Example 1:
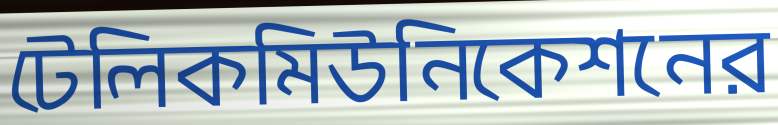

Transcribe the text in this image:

টেলিকমিউনিকেশনের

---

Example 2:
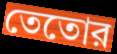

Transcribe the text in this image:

তেতোর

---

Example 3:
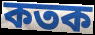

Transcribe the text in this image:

কতক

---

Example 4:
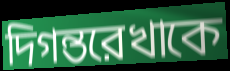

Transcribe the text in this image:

দিগন্তরেখাকে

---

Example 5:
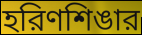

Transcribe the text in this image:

হরিণশিঙার